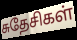
சுதேசிகள்